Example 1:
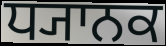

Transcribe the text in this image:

ਧ੍ਯਾਨਕ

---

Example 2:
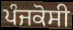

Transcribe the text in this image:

ਪੰਜਕੋਸੀ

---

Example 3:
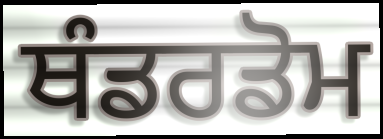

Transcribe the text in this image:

ਥੰਡਰਡੋਮ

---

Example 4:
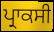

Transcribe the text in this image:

ਪ੍ਰਾਕਸੀ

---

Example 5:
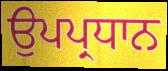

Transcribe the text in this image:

ਉਪਪ੍ਰਧਾਨ